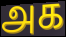
அக